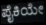
ಪೈಕಿಯೇ